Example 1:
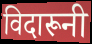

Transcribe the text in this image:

विदारूनी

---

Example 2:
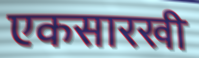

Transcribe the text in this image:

एकसारखी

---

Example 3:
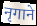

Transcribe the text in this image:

नृगाने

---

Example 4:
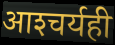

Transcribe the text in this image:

आश्‍चर्यही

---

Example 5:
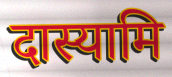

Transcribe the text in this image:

दास्यामि